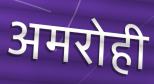
अमरोही